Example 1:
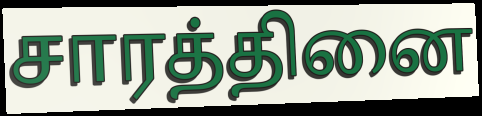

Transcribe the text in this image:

சாரத்தினை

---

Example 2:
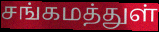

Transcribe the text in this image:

சங்கமத்துள்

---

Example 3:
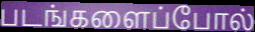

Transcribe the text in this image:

படங்களைப்போல்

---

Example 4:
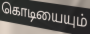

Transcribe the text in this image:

கொடியையும்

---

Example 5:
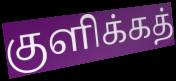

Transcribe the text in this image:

குளிக்கத்